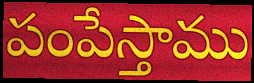
పంపేస్తాము